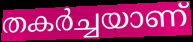
തകർച്ചയാണ്